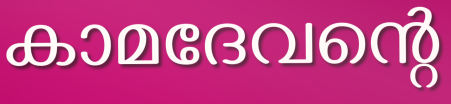
കാമദേവന്റെ